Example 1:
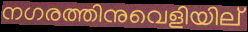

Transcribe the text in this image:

നഗരത്തിനുവെളിയില്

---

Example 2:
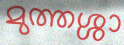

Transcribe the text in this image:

മുത്തശ്ശാ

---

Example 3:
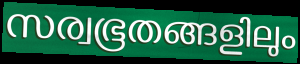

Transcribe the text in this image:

സര്വഭൂതങ്ങളിലും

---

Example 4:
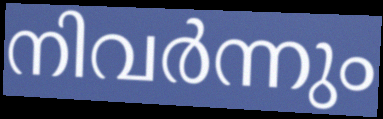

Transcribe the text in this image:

നിവർന്നും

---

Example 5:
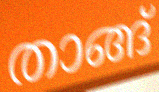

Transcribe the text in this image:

താങ്ങ്